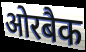
ओरबैक